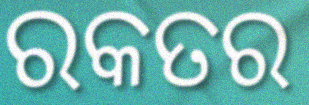
ରକତର